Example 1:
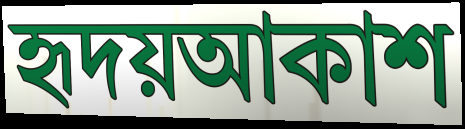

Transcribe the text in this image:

হৃদয়আকাশ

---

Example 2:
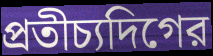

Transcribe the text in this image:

প্রতীচ্যদিগের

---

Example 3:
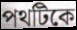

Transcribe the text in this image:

পথটিকে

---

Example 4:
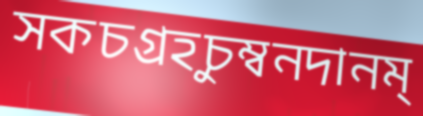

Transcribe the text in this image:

সকচগ্রহচুম্বনদানম্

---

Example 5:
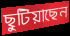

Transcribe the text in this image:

ছুটিয়াছেন